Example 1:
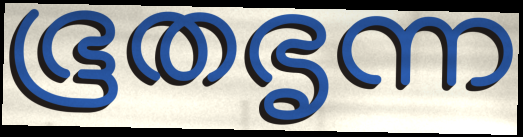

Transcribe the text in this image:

ഭൂതഭൃന്ന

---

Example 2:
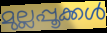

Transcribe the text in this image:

മുല്ലപ്പൂക്കൾ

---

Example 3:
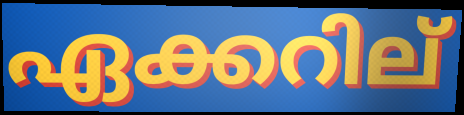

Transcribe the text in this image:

ഏക്കറില്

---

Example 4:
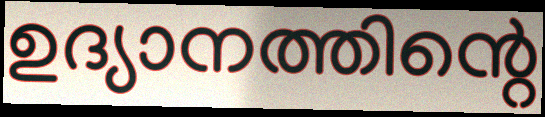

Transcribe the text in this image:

ഉദ്യാനത്തിന്റെ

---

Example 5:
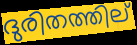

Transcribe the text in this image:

ദുരിതത്തില്